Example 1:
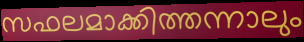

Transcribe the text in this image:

സഫലമാക്കിത്തന്നാലും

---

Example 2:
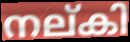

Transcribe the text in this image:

നല്കി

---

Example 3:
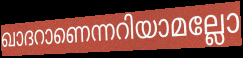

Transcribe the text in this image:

ഖാദറാണെന്നറിയാമല്ലോ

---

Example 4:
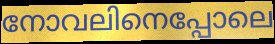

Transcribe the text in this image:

നോവലിനെപ്പോലെ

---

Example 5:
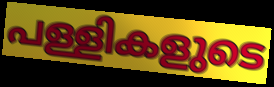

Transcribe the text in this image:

പള്ളികളുടെ